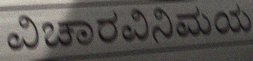
ವಿಚಾರವಿನಿಮಯ